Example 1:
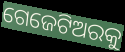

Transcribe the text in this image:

ଗେଜେଟିଅରକୁ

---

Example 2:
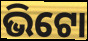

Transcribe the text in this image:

ଭିଟୋ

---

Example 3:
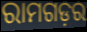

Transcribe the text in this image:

ରାମଗଡ଼ର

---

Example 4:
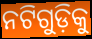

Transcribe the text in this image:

ନଟିଗୁଡ଼ିକୁ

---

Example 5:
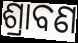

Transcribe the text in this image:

ଶ୍ରାବଣ